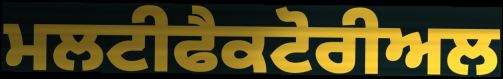
ਮਲਟੀਫੈਕਟੋਰੀਅਲ